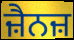
ਜ਼ੈਨਜ਼